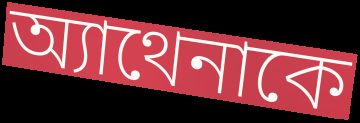
অ্যাথেনাকে